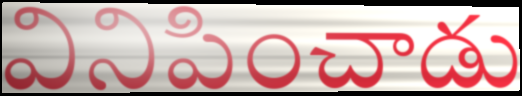
వినిపించాడు